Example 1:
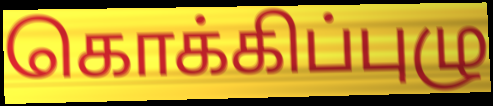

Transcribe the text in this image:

கொக்கிப்புழு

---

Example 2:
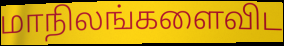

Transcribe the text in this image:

மாநிலங்களைவிட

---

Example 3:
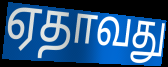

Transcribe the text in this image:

ஏதாவது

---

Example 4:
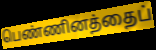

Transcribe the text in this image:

பெண்ணினத்தைப்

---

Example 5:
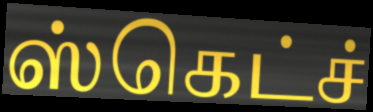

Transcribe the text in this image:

ஸ்கெட்ச்